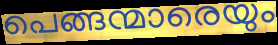
പെങ്ങന്മാരെയും